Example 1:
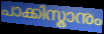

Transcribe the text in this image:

പാക്കിസ്താനും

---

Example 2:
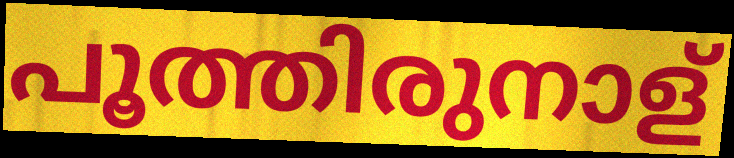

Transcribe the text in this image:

പൂത്തിരുനാള്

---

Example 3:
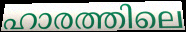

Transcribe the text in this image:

ഹാരത്തിലെ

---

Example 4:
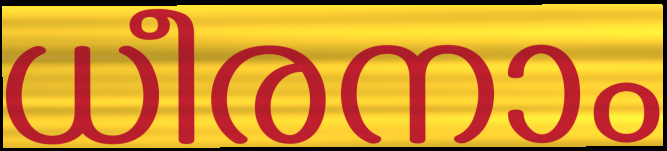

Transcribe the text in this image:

ധീരനാം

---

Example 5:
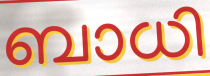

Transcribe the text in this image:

ബാധി